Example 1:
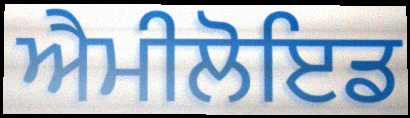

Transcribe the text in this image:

ਐਮੀਲੋਇਡ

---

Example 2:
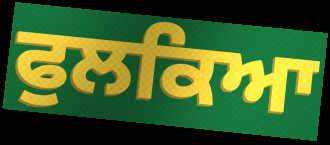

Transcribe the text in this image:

ਫੁਲਕਿਆ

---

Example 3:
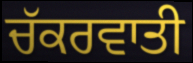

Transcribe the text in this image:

ਚੱਕਰਵਾਤੀ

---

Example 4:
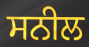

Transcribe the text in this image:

ਸਨੀਲ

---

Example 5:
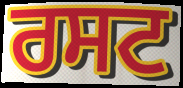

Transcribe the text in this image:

ਰਸਟ